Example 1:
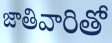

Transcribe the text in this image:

జాతివారితో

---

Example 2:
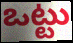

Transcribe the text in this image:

ఒట్టు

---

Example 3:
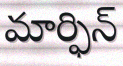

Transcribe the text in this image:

మార్ఫిన్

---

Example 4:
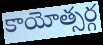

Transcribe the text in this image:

కాయోత్సర్గ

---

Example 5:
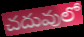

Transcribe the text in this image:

చదువులో